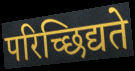
परिच्छिद्यते